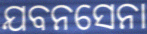
ଯବନସେନା